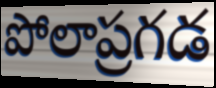
పోలాప్రగడ